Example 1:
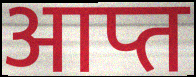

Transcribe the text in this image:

आप्त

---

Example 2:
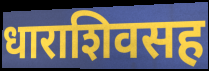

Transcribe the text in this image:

धाराशिवसह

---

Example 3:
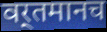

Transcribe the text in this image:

वर्तमानच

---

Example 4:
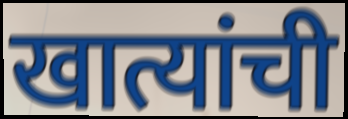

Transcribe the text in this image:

खात्यांची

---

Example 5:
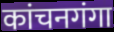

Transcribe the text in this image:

कांचनगंगा